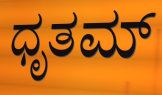
ಧೃತಮ್